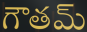
గౌతమ్